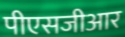
पीएसजीआर